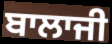
ਬਾਲਾਜੀ